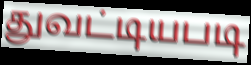
துவட்டியபடி